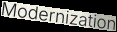
Modernization